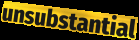
unsubstantial